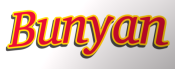
Bunyan